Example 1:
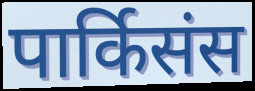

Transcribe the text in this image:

पार्किसंस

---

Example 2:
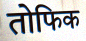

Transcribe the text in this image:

तोफिक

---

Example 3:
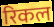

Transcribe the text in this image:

रिकल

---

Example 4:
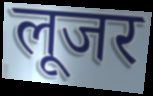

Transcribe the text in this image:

लूजर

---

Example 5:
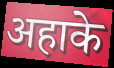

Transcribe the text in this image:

अहाके